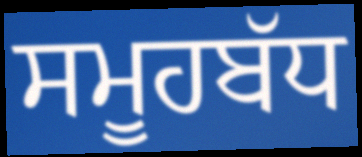
ਸਮੂਹਬੱਧ